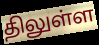
திலுள்ள